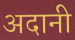
अदानी